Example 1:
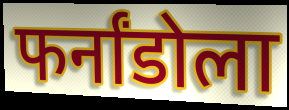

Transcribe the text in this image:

फर्नांडोला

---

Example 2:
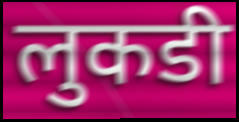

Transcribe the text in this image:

लुकडी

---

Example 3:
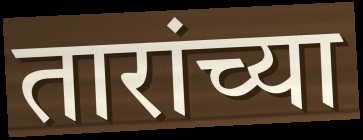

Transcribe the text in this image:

तारांच्या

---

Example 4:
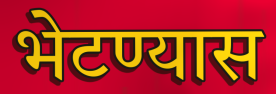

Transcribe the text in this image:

भेटण्यास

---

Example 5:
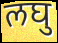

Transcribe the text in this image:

लघु